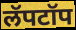
लॅपटॉप